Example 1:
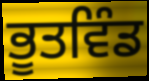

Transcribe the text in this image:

ਭੂਤਵਿੰਡ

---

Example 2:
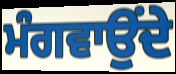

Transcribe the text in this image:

ਮੰਗਵਾਉਂਦੇ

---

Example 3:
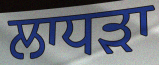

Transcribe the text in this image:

ਲਾਧੜਾ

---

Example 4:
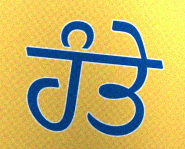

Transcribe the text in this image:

ਹੰਤੇ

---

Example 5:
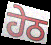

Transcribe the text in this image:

ਹੇਠ